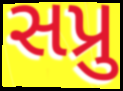
સપ્રુ